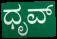
ಧೃವ್